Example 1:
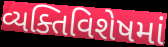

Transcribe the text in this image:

વ્યક્તિવિશેષમાં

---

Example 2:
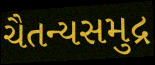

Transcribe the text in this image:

ચૈતન્યસમુદ્ર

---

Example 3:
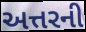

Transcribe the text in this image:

અત્તરની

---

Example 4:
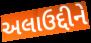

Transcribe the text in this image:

અલાઉદ્દીને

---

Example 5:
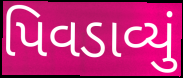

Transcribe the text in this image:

પિવડાવ્યું